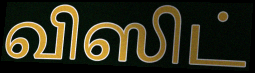
விஸிட்